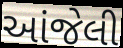
આંજેલી